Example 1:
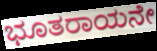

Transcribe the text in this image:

ಭೂತರಾಯನೇ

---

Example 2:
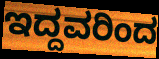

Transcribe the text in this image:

ಇದ್ದವರಿಂದ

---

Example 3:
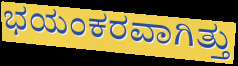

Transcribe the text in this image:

ಭಯಂಕರವಾಗಿತ್ತು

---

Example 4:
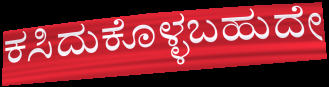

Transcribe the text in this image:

ಕಸಿದುಕೊಳ್ಳಬಹುದೇ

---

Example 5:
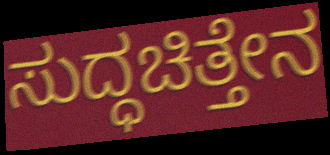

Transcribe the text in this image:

ಸುದ್ಧಚಿತ್ತೇನ